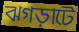
ঝগড়াটে